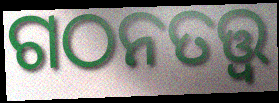
ଗଠନତତ୍ତ୍ୱ